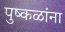
पुष्कळांना